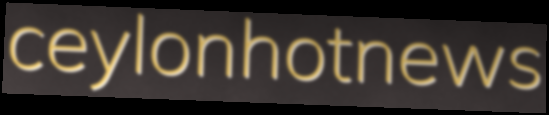
ceylonhotnews